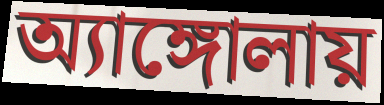
অ্যাঙ্গোলায়